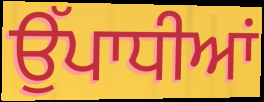
ਉੱਪਾਧੀਆਂ